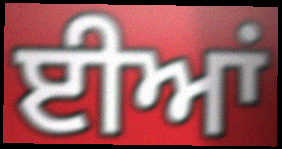
ਈਆਂ